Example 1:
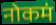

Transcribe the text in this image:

नोकमं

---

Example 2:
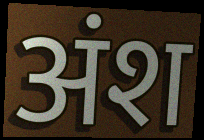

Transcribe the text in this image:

अंश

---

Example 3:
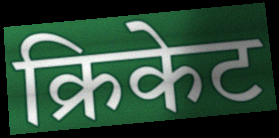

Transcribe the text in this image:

क्रिकेट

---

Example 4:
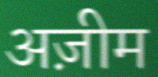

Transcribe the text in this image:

अज़ीम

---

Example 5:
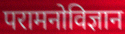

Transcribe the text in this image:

परामनोविज्ञान